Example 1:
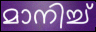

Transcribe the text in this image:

മാനിച്ച്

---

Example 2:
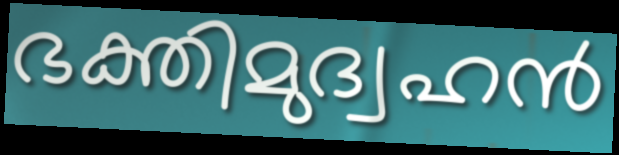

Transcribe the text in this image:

ഭക്തിമുദ്വഹൻ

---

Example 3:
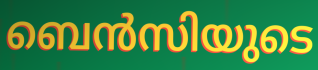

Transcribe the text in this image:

ബെൻസിയുടെ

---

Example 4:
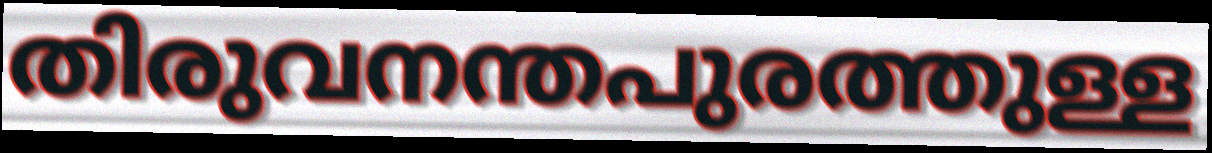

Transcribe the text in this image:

തിരുവനന്തപുരത്തുള്ള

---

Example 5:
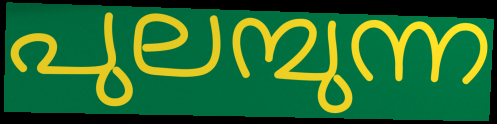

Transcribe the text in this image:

പുലമ്പുന്ന